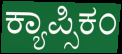
ಕ್ಯಾಪ್ಸಿಕಂ